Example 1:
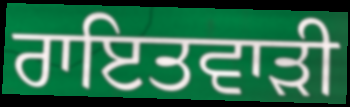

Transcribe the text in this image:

ਰਾਇਤਵਾੜੀ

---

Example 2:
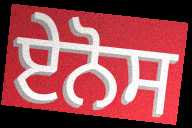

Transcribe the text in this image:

ਏਨੋਸ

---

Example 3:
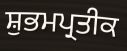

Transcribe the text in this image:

ਸ਼ੁਭਮਪ੍ਰਤੀਕ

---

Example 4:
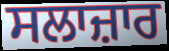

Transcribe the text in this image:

ਸਲਾਜ਼ਾਰ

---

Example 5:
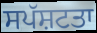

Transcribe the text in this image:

ਸਪੱਸ਼ਟਤਾ